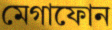
মেগাফোন